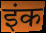
इंक